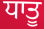
ਧਾਤੂ